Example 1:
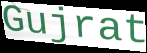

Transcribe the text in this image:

Gujrat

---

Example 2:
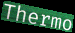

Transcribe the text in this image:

Thermo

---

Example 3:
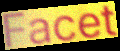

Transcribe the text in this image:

Facet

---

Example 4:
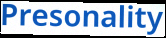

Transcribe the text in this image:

Presonality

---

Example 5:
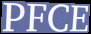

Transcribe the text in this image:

PFCE